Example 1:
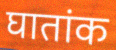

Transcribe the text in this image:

घातांक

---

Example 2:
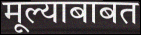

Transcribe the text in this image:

मूल्याबाबत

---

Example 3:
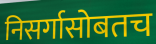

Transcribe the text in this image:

निसर्गासोबतच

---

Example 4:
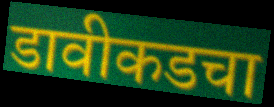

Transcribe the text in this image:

डावीकडचा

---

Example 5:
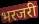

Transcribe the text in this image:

भरजरी